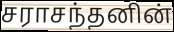
சராசந்தனின்